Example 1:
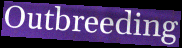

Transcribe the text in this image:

Outbreeding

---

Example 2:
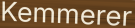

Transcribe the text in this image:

Kemmerer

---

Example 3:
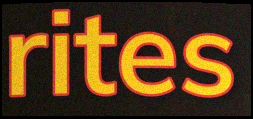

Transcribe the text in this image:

rites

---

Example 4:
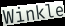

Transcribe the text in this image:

Winkle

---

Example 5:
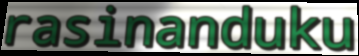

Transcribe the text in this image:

rasinanduku